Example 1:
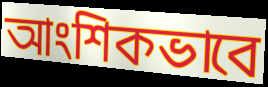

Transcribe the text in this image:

আংশিকভাবে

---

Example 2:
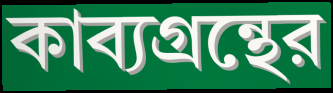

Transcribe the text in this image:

কাব্যগ্রন্থের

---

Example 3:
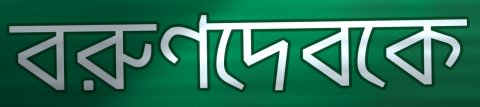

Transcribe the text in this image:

বরুণদেবকে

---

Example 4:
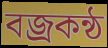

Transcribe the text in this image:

বজ্রকন্ঠ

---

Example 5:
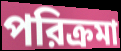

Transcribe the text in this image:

পরিক্রমা